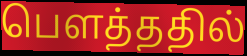
பௌத்ததில்